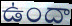
ఉందా